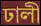
ঢালী